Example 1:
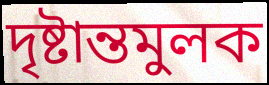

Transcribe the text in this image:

দৃষ্টান্তমুলক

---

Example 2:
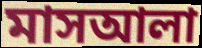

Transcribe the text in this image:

মাসআলা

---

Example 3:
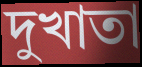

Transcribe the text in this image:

দুখাতা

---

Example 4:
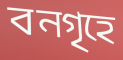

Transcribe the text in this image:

বনগৃহে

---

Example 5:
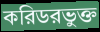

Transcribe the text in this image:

করিডরভুক্ত